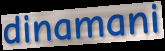
dinamani